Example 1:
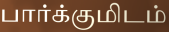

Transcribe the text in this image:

பார்க்குமிடம்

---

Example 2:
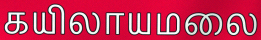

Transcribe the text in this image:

கயிலாயமலை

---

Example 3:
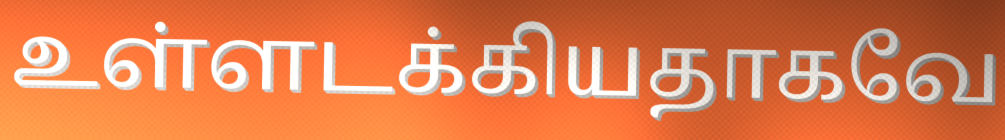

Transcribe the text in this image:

உள்ளடக்கியதாகவே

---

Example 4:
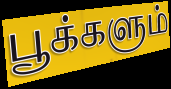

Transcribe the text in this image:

பூக்களும்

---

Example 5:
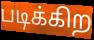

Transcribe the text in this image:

படிக்கிற